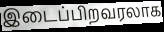
இடைப்பிறவரலாக